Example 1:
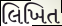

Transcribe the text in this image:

લિખિત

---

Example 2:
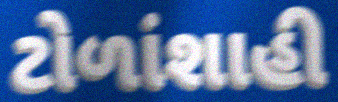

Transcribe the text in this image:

ટોળાંશાહી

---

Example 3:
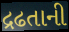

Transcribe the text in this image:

દ્રઢતાની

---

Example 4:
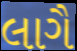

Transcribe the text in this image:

લાગૈ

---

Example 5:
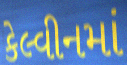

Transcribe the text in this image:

કેલ્વીનમાં